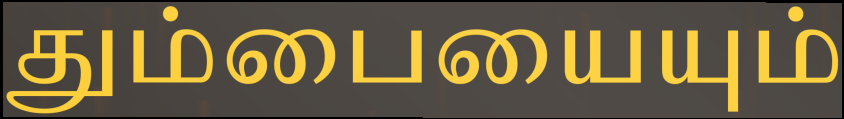
தும்பையையும்